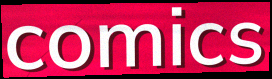
comics